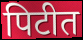
पिटीत